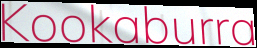
Kookaburra